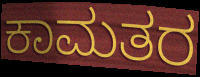
ಕಾಮತರ